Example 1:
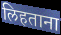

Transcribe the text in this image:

लिहताना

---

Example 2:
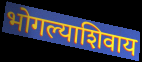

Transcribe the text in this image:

भोगल्याशिवाय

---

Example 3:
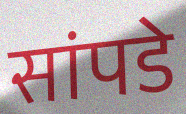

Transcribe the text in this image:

सांपडे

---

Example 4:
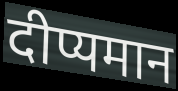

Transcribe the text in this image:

दीप्यमान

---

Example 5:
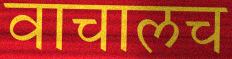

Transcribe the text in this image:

वाचालच